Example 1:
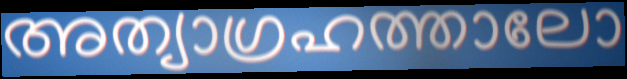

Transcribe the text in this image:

അത്യാഗ്രഹത്താലോ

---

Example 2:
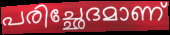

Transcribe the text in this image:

പരിച്ഛേദമാണ്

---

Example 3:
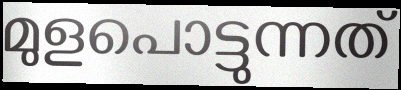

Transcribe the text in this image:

മുളപൊട്ടുന്നത്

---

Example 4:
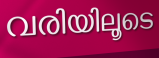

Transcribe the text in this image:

വരിയിലൂടെ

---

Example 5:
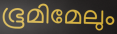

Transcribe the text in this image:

ഭൂമിമേലും